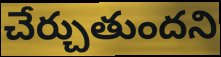
చేర్చుతుందని